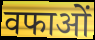
वफाओं